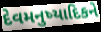
દેવમનુષ્યાદિકને